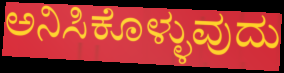
ಅನಿಸಿಕೊಳ್ಳುವುದು